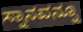
ಸ್ನಾನವನ್ನೂ